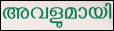
അവളുമായി